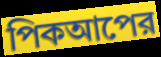
পিকআপের